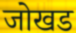
जोखड